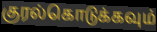
குரல்கொடுக்கவும்